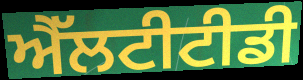
ਐੱਲਟੀਟੀਡੀ